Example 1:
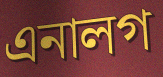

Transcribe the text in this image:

এনালগ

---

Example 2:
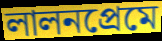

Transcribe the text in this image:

লালনপ্রেমে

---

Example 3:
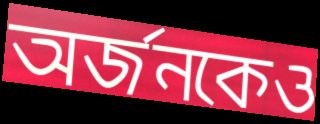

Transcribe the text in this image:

অর্জনকেও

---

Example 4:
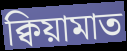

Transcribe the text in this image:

ক্বিয়ামাত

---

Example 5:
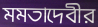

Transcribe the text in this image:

মমতাদেবীর